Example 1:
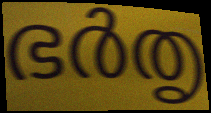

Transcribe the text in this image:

ഭർതൃ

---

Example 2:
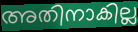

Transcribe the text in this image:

അതിനാകില്ല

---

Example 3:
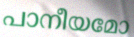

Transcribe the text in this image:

പാനീയമോ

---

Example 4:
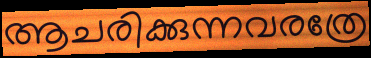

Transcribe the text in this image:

ആചരിക്കുന്നവരത്രേ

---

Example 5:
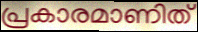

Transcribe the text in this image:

പ്രകാരമാണിത്